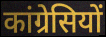
कांग्रेसियों